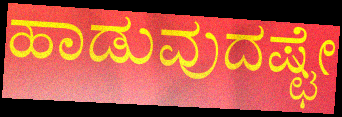
ಹಾಡುವುದಷ್ಟೇ